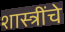
शास्त्रींचे